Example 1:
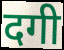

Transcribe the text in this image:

दगी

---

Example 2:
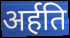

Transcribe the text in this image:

अर्हति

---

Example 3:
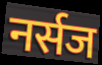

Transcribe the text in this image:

नर्सज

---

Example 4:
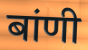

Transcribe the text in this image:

बांणी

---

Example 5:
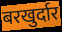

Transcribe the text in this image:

बरखुर्दार